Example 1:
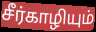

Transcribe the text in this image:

சீர்காழியும்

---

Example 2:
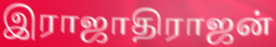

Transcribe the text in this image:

இராஜாதிராஜன்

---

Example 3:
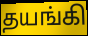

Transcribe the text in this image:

தயங்கி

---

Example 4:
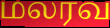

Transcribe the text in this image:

மலரவ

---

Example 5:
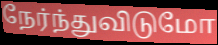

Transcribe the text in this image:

நேர்ந்துவிடுமோ